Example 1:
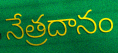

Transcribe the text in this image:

నేత్రదానం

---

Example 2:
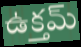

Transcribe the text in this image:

ఉక్తమ్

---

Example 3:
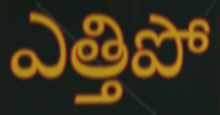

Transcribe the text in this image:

ఎత్తిపో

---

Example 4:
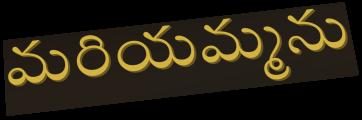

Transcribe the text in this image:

మరియమ్మను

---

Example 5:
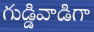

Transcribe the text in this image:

గుడ్డివాడిగా